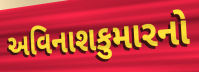
અવિનાશકુમારનો